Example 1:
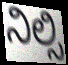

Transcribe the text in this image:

ನಿಲ್ಸಿ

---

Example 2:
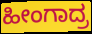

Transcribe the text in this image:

ಹೀಂಗಾದ್ರ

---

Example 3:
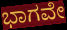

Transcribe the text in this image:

ಭಾಗವೇ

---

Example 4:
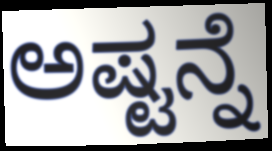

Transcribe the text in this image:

ಅಷ್ಟನ್ನೆ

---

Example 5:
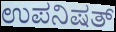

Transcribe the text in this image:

ಉಪನಿಷತ್